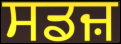
ਸਡਜ਼